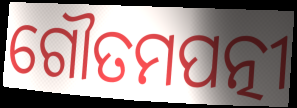
ଗୌତମପତ୍ନୀ